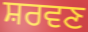
ਸ਼ਰਵਣ